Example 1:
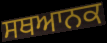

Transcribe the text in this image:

ਸਥਆਨਕ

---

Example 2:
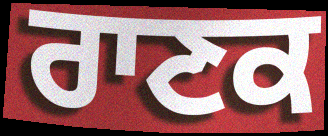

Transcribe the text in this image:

ਰਾਣਕ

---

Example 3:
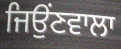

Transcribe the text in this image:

ਜਿਉਂਣਵਾਲਾ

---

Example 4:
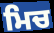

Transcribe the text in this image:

ਮਿਚ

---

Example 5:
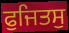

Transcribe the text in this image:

ਫੁਜਿਤਸੁ